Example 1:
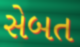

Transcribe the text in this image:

સેબત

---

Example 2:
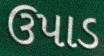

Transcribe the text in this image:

ઉપાડ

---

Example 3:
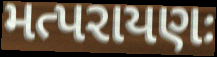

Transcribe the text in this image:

મત્પરાયણઃ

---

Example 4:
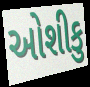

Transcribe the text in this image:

ઓશીકુ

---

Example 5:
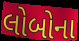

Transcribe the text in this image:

લોબોના